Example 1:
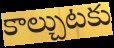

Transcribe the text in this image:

కాల్చుటకు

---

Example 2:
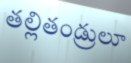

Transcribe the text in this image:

తల్లితండ్రులూ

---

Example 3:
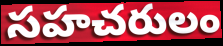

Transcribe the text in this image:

సహచరులం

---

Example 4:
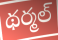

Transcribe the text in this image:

థర్మల్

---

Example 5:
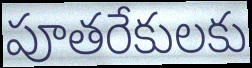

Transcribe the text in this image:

పూతరేకులకు